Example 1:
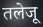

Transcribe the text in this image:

तलेजू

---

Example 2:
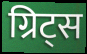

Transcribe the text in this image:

ग्रिट्स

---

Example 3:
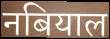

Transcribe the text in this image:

नबियाल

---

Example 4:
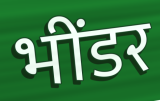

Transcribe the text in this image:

भींडर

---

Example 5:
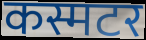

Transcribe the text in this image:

कस्मटर